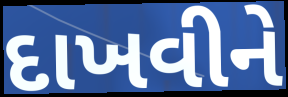
દાખવીને